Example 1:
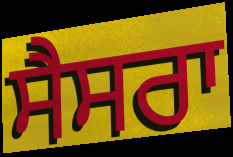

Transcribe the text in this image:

ਸੈਸਰਾ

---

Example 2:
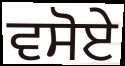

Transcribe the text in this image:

ਵਸੋਏ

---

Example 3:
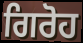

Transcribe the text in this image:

ਗਿਰੋਹ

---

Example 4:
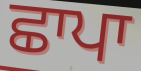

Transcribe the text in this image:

ਛਾਪਾ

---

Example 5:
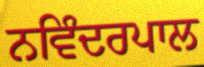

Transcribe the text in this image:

ਨਵਿੰਦਰਪਾਲ